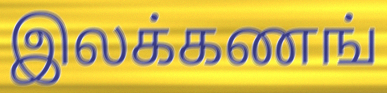
இலக்கணங்